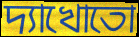
দ্যাখোতো